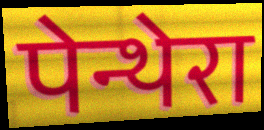
पेन्थेरा